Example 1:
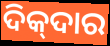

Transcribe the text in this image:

ଦିକ୍‍ଦାର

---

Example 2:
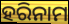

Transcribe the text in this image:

ହରିନାମ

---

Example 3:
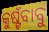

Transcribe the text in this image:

କୁଷ୍ଟଁବାବୁ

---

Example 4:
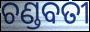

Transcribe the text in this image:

ଚଣ୍ଡବତୀ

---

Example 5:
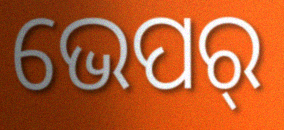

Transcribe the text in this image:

ଭେପର୍